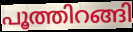
പൂത്തിറങ്ങി